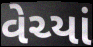
વેચ્યાં